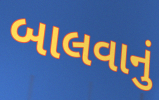
બાલવાનું